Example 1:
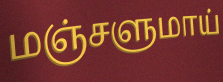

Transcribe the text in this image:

மஞ்சளுமாய்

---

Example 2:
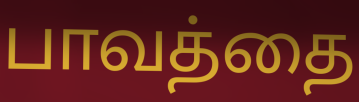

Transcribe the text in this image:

பாவத்தை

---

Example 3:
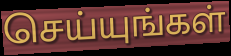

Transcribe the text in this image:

செய்யுங்கள்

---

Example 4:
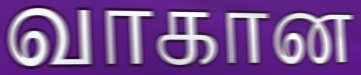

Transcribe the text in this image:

வாகான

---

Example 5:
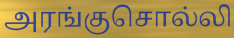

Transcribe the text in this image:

அரங்குசொல்லி